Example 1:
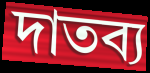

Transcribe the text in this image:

দাতব্য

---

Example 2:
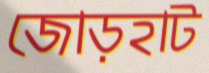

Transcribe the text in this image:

জোড়হাট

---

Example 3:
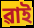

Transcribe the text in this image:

ৱাই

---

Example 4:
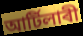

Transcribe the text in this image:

আৰ্টিলাৰী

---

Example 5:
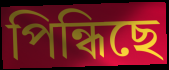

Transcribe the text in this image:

পিন্ধিছে